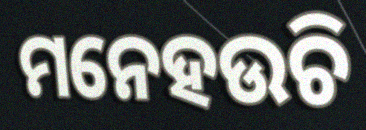
ମନେହଉଚି